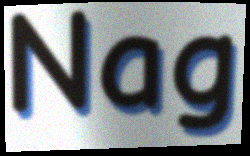
Nag